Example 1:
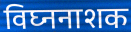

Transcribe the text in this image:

विघ्ननाशक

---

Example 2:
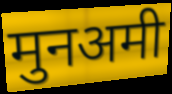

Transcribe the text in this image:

मुनअमी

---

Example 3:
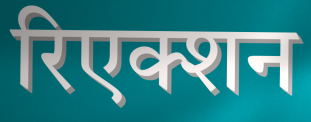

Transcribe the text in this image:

रिएक्शन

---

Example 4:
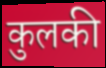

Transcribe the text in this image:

कुलकी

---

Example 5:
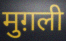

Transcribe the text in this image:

मुग़ली